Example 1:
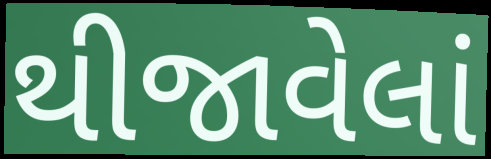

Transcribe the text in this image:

થીજાવેલાં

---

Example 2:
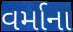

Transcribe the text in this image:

વર્માના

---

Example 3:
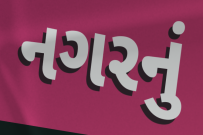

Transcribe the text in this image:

નગરનું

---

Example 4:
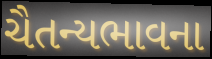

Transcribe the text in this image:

ચૈતન્યભાવના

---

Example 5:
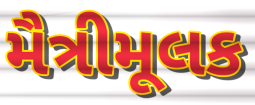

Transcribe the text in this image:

મૈત્રીમૂલક